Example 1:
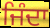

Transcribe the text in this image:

ਜਿੰਦਾ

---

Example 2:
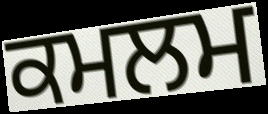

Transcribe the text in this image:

ਕਮਲਮ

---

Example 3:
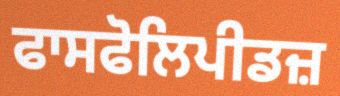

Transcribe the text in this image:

ਫਾਸਫੋਲਿਪੀਡਜ਼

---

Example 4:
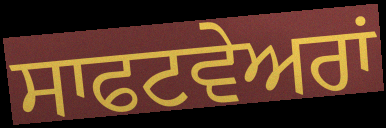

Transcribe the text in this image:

ਸਾਫਟਵੇਅਰਾਂ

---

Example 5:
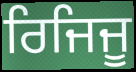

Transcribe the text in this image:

ਰਿਜਿਜੂ